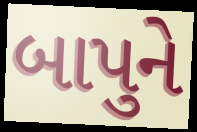
બાપુને